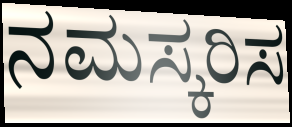
ನಮಸ್ಕರಿಸ